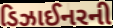
ડિઝાઈનરની